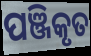
ପଞ୍ଜିକୃତ